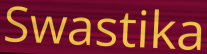
Swastika